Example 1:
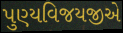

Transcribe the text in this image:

પુણ્યવિજયજીએ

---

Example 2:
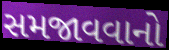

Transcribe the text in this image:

સમજાવવાનો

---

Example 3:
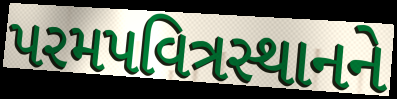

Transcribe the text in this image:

પરમપવિત્રસ્થાનને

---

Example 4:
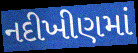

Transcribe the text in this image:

નદીખીણમાં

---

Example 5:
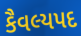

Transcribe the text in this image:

કૈવલ્યપદ